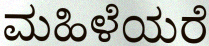
ಮಹಿಳೆಯರೆ